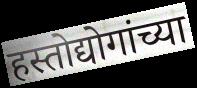
हस्तोद्योगांच्या